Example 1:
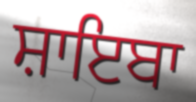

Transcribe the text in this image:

ਸ਼ਾਇਬਾ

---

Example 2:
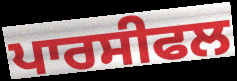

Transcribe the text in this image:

ਪਾਰਸੀਫਲ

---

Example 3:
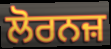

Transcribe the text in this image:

ਲੋਰਨਜ਼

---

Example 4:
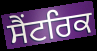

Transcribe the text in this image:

ਸੈਂਟਰਿਕ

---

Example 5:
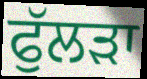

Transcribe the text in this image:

ਫੁੱਲੜਾ